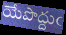
యేపొద్దుఁ